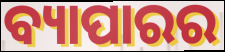
ବ୍ୟାପାରର